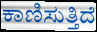
ಕಾಣಿಸುತ್ತಿದೆ